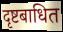
दृष्टबाधित